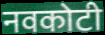
नवकोटी